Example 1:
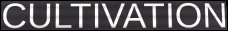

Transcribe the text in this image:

CULTIVATION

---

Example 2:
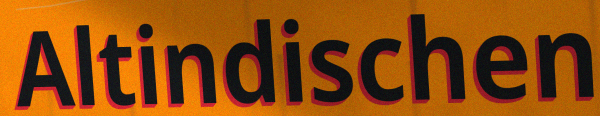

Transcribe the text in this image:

Altindischen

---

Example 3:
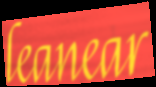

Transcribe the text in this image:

leanear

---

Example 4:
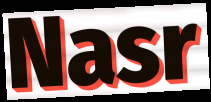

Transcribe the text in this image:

Nasr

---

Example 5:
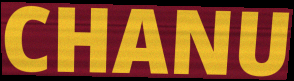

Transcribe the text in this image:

CHANU